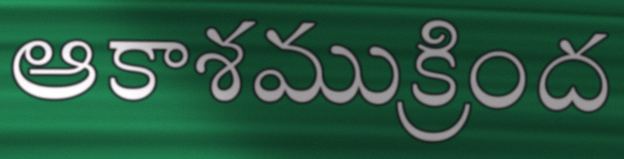
ఆకాశముక్రింద